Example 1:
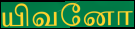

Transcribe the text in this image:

யிவனோ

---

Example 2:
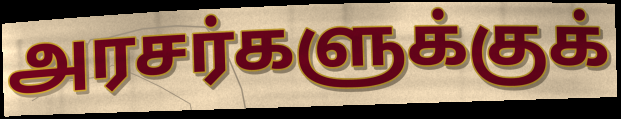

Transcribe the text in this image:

அரசர்களுக்குக்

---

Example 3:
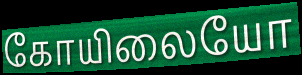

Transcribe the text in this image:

கோயிலையோ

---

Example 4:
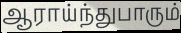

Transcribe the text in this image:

ஆராய்ந்துபாரும்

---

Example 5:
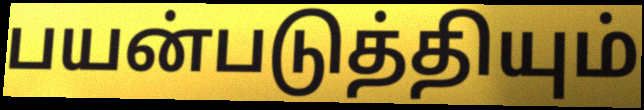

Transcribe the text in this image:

பயன்படுத்தியும்